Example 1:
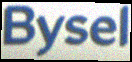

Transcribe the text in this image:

Bysel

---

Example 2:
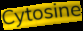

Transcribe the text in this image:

Cytosine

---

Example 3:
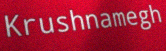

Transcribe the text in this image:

Krushnamegh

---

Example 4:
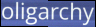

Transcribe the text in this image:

oligarchy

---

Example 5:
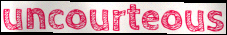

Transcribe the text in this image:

uncourteous